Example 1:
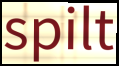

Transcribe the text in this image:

spilt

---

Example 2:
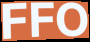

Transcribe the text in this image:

FFO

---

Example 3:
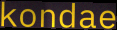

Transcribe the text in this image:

kondae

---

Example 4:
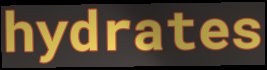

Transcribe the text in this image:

hydrates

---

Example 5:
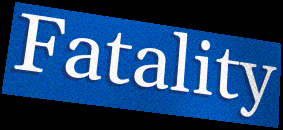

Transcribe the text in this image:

Fatality